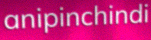
anipinchindi